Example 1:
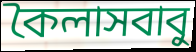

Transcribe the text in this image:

কৈলাসবাবু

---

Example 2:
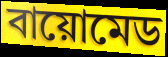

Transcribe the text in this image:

বায়োমেড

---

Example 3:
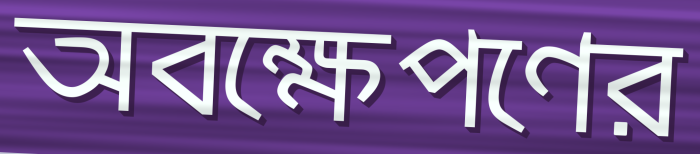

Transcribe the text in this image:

অবক্ষেপণের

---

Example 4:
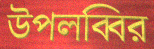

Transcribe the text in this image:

উপলব্বির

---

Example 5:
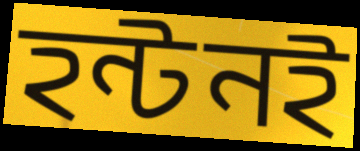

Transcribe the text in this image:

হন্টনই